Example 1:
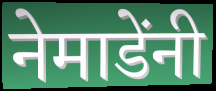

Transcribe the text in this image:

नेमाडेंनी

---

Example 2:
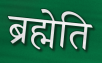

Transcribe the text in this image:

ब्रह्मेति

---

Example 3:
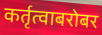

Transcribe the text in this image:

कर्तृत्वाबरोबर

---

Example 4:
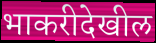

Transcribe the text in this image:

भाकरीदेखील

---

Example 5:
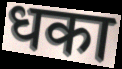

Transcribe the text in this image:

धका